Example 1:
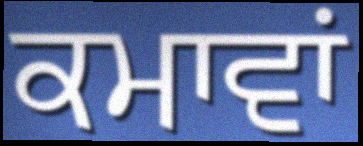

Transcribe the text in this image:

ਕਮਾਵਾਂ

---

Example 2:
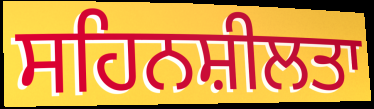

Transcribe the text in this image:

ਸਹਿਨਸ਼ੀਲਤਾ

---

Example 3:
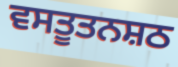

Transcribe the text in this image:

ਵਸਤੂਤਨਸ਼ਠ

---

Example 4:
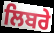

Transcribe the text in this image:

ਲਿਬਰੇ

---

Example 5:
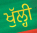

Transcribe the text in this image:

ਖੁੱਲ੍ਹੀ